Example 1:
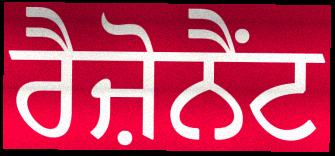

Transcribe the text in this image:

ਰੈਜ਼ੋਨੈਂਟ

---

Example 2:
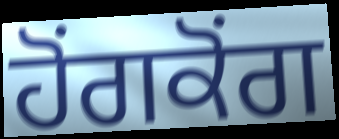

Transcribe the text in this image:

ਹੋਂਗਕੋਂਗ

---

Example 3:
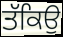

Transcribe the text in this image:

ਤੱਕਿਉ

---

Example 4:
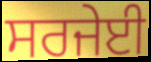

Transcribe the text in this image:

ਸਰਜੇਈ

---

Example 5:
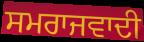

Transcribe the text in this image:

ਸਮਰਾਜਵਾਦੀ